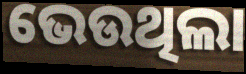
ଭେଉଥିଲା